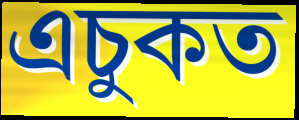
এচুকত